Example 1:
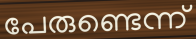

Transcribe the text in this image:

പേരുണ്ടെന്ന്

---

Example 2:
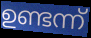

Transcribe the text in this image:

ഉണ്ടന്ന്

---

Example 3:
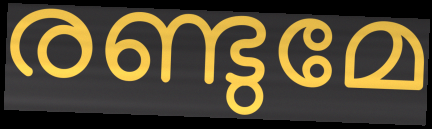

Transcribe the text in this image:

രണ്ടുമേ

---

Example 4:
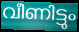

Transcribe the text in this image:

വീണിട്ടും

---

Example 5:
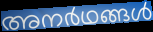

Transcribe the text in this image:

അനർഥങ്ങൾ